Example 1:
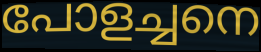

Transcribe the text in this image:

പോളച്ചനെ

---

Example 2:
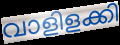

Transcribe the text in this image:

വാളിളക്കി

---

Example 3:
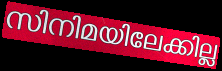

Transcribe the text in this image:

സിനിമയിലേക്കില്ല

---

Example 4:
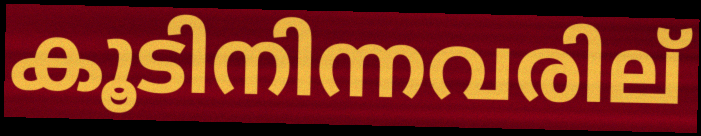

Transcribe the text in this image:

കൂടിനിന്നവരില്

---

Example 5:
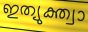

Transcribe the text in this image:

ഇത്യുക്ത്വാ